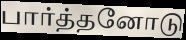
பார்த்தனோடு